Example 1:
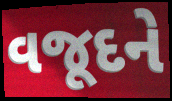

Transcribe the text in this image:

વજૂદને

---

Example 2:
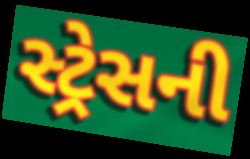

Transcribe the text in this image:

સ્ટ્રેસની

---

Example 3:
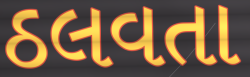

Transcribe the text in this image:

ઠલવતા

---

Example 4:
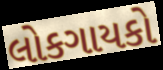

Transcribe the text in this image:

લોકગાયકો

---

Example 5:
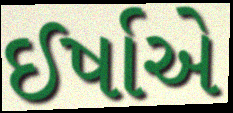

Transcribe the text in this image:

ઈર્ષાએ